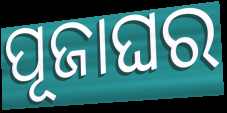
ପୂଜାଘର